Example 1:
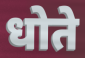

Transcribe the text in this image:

धोते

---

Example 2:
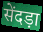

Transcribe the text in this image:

सेंदड़ा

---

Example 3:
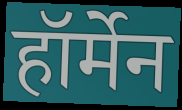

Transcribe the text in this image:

हॉर्मेन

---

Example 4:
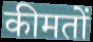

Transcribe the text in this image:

कीमतों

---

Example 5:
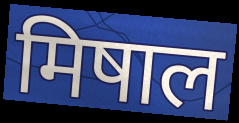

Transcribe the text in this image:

मिषाल